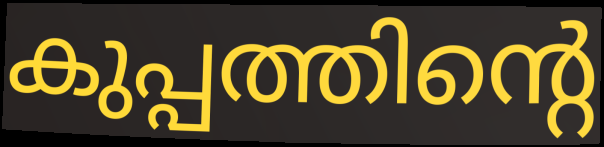
കുപ്പത്തിന്റെ